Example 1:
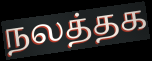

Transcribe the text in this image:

நலத்தக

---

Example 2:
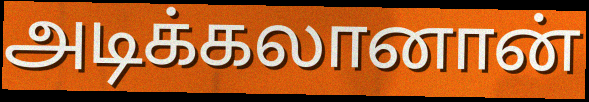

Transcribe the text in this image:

அடிக்கலானான்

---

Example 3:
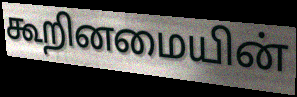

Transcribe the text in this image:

கூறினமையின்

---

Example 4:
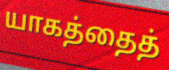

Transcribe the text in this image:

யாகத்தைத்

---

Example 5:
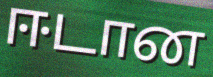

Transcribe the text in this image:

ஈடான